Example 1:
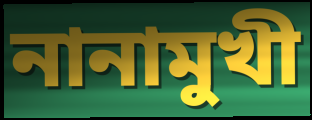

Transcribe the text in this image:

নানামুখী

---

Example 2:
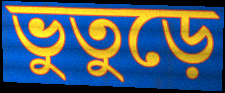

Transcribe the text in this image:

ভুতুড়ে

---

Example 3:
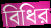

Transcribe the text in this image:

বিধির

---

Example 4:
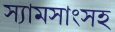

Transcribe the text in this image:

স্যামসাংসহ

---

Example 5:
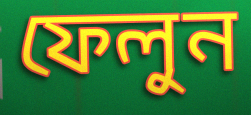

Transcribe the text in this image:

ফেলুন